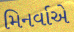
મિનર્વાએ